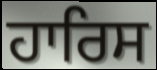
ਹਾਰਿਸ